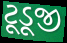
ટૂડૂજી